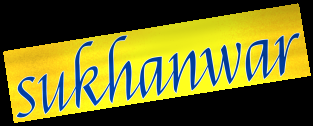
sukhanwar